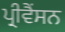
ਪ੍ਰੀਵੈਂਸਨ